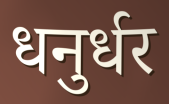
धनुर्धर